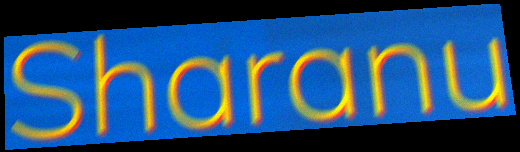
Sharanu